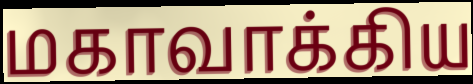
மகாவாக்கிய